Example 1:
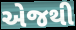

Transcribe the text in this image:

એજથી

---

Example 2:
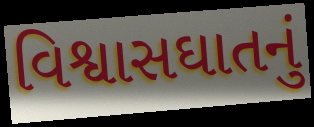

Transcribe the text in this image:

વિશ્વાસઘાતનું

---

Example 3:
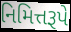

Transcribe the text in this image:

નિમિત્તરૂપે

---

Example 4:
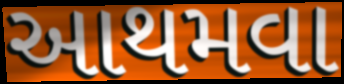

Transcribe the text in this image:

આથમવા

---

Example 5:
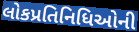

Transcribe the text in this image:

લોકપ્રતિનિધિઓની